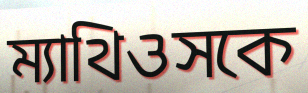
ম্যাথিওসকে